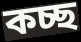
কচ্ছ